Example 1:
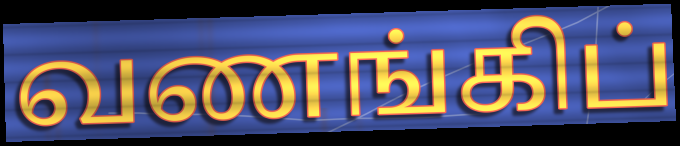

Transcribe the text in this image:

வணங்கிப்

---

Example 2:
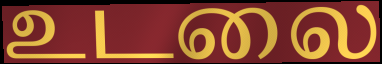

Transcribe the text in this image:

உடலை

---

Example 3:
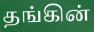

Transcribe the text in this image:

தங்கின்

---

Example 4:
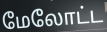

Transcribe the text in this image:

மேலோட்ட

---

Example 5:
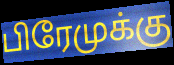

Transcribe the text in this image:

பிரேமுக்கு